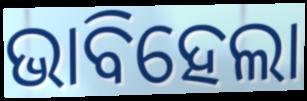
ଭାବିହେଲା